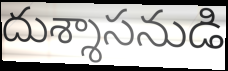
దుశ్శాసనుడి